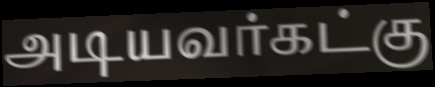
அடியவர்கட்கு